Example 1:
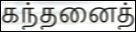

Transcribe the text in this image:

கந்தனைத்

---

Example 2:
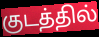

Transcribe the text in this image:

குடத்தில்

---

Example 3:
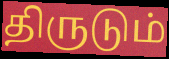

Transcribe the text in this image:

திருடும்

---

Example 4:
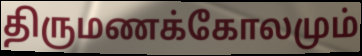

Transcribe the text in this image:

திருமணக்கோலமும்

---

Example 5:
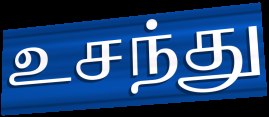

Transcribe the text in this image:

உசந்து